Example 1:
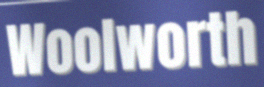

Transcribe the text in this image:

Woolworth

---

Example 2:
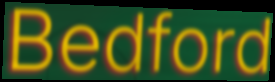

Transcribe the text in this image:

Bedford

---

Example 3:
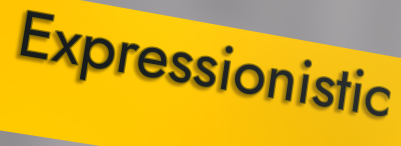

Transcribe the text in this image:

Expressionistic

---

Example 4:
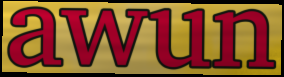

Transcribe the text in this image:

awun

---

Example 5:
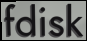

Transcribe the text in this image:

fdisk